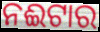
ନଈଟାର